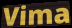
Vima